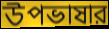
উপভাষার